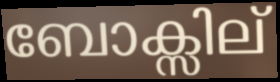
ബോക്സില്